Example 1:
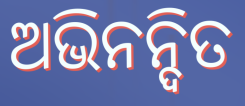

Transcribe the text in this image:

ଅଭିନନ୍ଦିତ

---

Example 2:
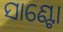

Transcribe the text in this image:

ସାଣ୍ଟୋ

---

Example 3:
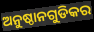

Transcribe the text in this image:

ଅନୁଷ୍ଠାନଗୁଡିକର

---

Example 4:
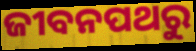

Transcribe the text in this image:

ଜୀବନପଥରୁ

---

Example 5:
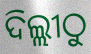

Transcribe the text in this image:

ଦିଲ୍ଲୀଠୁ